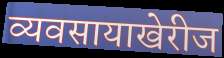
व्यवसायाखेरीज